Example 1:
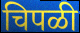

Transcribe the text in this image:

चिपळी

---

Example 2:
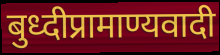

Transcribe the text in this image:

बुध्दीप्रामाण्यवादी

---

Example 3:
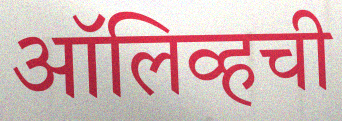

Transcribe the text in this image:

ऑलिव्हची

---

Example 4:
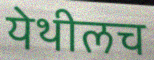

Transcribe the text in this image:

येथीलच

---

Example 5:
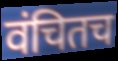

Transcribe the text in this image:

वंचितच